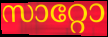
സാറ്റോ